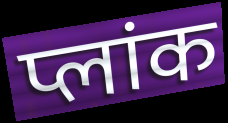
प्लांक